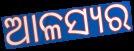
ଆଳସ୍ୟର